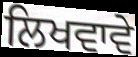
ਲਿਖਵਾਵੇ